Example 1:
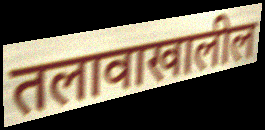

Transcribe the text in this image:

तलावाखालील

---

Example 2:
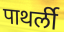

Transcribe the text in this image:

पाथर्ली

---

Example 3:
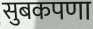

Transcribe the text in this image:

सुबकपणा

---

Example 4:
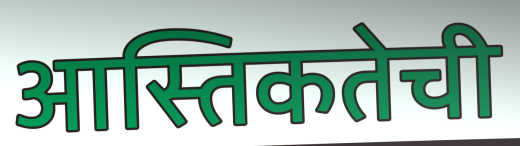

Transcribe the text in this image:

आस्तिकतेची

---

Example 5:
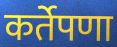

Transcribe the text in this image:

कर्तेपणा